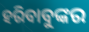
ହରିବାବୁଙ୍କର